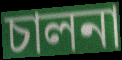
চালনা